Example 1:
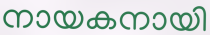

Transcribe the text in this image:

നായകനായി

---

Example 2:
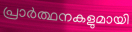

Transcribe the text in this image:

പ്രാർത്ഥനകളുമായി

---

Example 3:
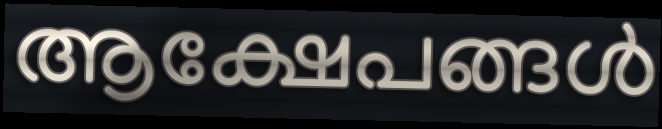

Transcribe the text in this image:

ആക്ഷേപങ്ങൾ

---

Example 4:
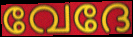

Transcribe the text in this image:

വേദേ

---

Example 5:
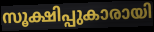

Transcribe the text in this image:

സൂക്ഷിപ്പുകാരായി